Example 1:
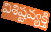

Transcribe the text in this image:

విశిష్టవ్యక్తి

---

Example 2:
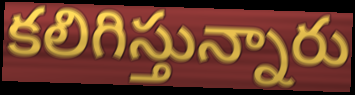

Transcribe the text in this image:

కలిగిస్తున్నారు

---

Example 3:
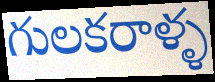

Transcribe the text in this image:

గులకరాళ్ళ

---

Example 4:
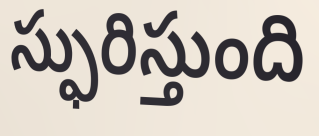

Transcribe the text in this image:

స్ఫురిస్తుంది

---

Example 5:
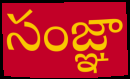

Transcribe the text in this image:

సంజ్ఞా